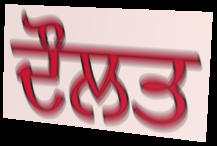
ਦੌਲਤ